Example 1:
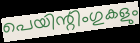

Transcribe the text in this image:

പെയിന്റിംഗുകളും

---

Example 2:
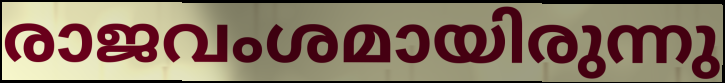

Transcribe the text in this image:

രാജവംശമായിരുന്നു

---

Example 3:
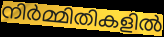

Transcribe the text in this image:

നിർമ്മിതികളിൽ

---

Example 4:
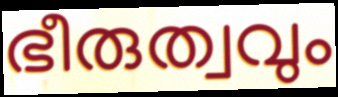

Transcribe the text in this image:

ഭീരുത്വവും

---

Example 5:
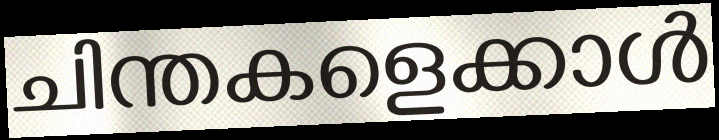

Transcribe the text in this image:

ചിന്തകളെക്കാൾ